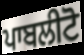
ਪਾਬਲੀਟੋ